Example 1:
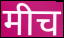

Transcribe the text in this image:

मीच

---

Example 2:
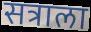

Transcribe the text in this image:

सत्राला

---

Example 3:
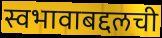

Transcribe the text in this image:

स्वभावाबद्दलची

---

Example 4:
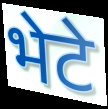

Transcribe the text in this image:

भेटे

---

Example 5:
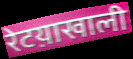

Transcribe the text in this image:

रेटय़ाखाली